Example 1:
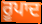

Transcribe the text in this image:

ਰੂਪਾਦ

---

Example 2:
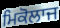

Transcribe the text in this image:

ਮਿਕੋਲਾਜ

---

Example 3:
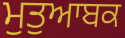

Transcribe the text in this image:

ਮੁਤੁਆਬਕ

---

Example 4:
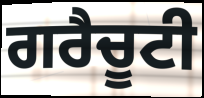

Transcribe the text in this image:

ਗਰੈਚੂਟੀ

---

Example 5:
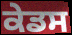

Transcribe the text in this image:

ਕੇਡਸ